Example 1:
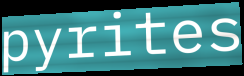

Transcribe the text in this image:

pyrites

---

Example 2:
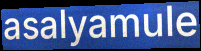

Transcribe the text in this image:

asalyamule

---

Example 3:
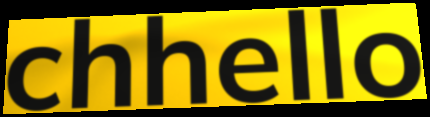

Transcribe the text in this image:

chhello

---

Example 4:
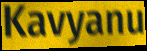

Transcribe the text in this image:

Kavyanu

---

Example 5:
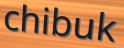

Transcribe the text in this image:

chibuk